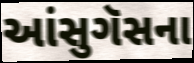
આંસુગૅસના